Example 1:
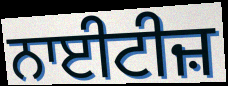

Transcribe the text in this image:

ਨਾਈਟੀਜ਼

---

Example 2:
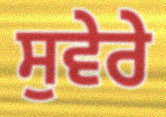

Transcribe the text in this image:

ਸੁਵੇਰੇ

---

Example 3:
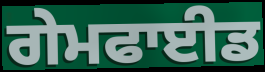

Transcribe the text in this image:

ਗੇਮਫਾਈਡ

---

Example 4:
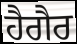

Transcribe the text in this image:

ਹੈਗੈਰ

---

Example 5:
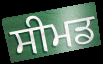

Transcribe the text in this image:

ਸੀਮਡ